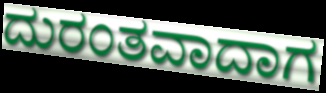
ದುರಂತವಾದಾಗ